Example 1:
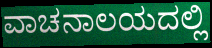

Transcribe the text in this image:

ವಾಚನಾಲಯದಲ್ಲಿ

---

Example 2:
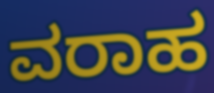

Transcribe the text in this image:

ವರಾಹ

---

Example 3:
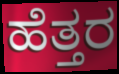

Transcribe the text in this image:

ಹೆತ್ತರ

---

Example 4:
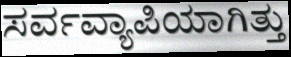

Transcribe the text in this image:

ಸರ್ವವ್ಯಾಪಿಯಾಗಿತ್ತು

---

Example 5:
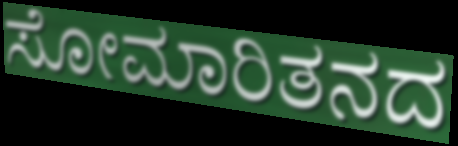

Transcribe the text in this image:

ಸೋಮಾರಿತನದ